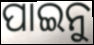
ପାଇନୁ